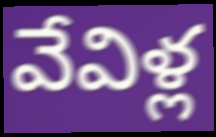
వేవిళ్ల